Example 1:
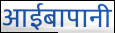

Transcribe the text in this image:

आईबापानी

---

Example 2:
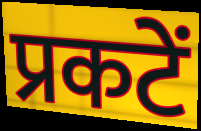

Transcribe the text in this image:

प्रकटें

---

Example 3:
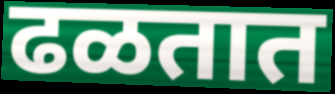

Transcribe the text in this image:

ढळतात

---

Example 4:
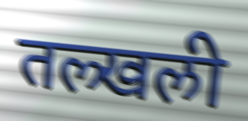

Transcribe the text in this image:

तल्खली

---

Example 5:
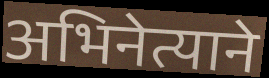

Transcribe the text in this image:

अभिनेत्याने